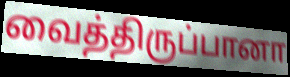
வைத்திருப்பானா